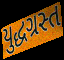
યુદ્ધગ્રસ્ત